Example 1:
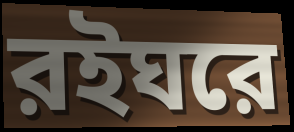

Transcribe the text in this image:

রইঘরে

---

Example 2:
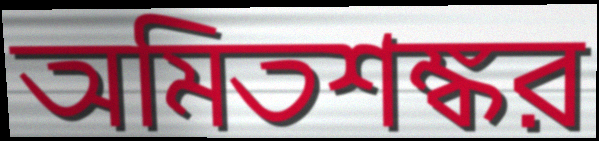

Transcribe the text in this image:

অমিতশঙ্কর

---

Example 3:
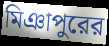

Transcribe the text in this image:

মিঞাপুরের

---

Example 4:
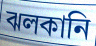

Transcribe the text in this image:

ঝলকানি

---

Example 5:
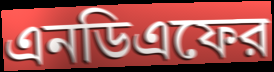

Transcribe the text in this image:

এনডিএফের